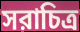
সরাচিত্র